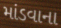
માંડવાના